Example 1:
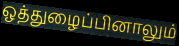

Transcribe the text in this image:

ஒத்துழைப்பினாலும்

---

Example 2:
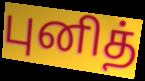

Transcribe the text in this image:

புனித்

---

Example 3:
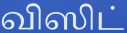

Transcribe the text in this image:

விஸிட்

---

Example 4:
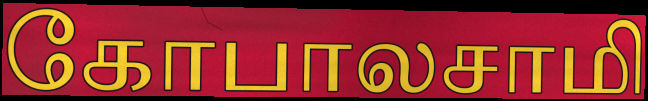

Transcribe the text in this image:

கோபாலசாமி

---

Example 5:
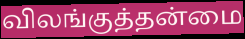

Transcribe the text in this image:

விலங்குத்தன்மை